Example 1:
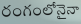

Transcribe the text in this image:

రంగంలోనైనా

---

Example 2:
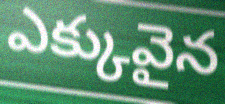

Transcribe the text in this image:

ఎక్కువైన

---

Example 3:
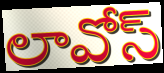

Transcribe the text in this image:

లావోస్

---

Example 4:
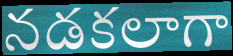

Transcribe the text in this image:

నడకలాగా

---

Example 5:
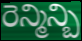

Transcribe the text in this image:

రెన్మిన్బి